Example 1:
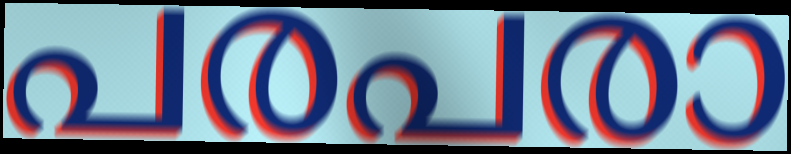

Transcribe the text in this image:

പരപരാ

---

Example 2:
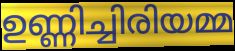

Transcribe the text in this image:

ഉണ്ണിച്ചിരിയമ്മ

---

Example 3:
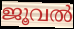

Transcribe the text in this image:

ജൂവൽ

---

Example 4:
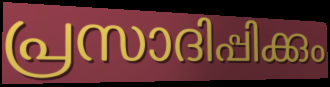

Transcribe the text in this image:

പ്രസാദിപ്പിക്കും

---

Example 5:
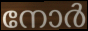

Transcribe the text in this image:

നോർ